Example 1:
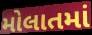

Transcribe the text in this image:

મોલાતમાં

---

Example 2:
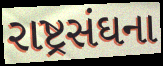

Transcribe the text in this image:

રાષ્ટ્રસંઘના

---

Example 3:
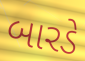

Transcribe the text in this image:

બારડે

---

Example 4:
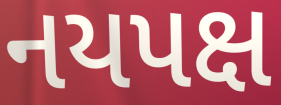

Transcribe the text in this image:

નયપક્ષ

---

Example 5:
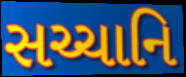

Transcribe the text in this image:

સચ્ચાનિ